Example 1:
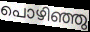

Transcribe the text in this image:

പൊഴിഞ്ഞു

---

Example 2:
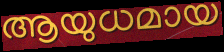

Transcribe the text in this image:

ആയുധമായ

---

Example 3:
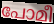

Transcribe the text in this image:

പോമീ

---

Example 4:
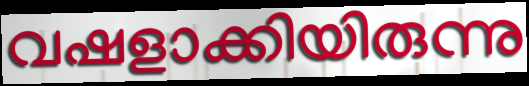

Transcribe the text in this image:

വഷളാക്കിയിരുന്നു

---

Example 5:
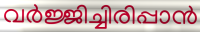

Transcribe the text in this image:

വർജ്ജിച്ചിരിപ്പാൻ